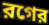
রগের